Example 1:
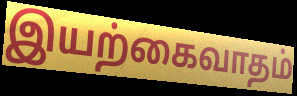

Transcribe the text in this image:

இயற்கைவாதம்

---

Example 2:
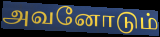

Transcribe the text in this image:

அவனோடும்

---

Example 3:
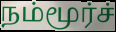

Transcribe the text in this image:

நம்மூர்ச்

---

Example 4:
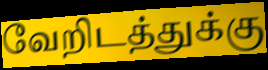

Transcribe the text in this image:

வேறிடத்துக்கு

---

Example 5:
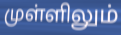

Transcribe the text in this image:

முள்ளிலும்